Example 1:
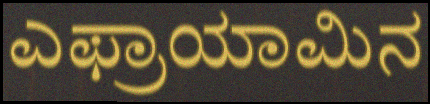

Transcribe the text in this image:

ಎಫ್ರಾಯಾಮಿನ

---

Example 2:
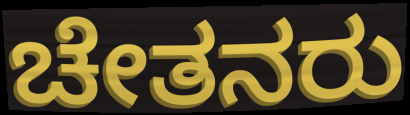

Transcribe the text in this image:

ಚೇತನರು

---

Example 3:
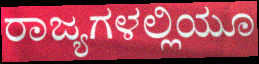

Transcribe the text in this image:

ರಾಜ್ಯಗಳಲ್ಲಿಯೂ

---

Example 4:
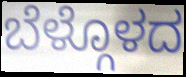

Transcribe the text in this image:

ಬೆಳ್ಗೊಳದ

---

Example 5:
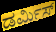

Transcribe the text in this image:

ಡರ್ಮಿಸ್